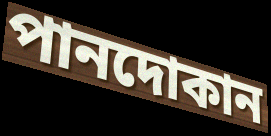
পানদোকান